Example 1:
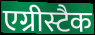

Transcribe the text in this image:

एग्रीस्टैक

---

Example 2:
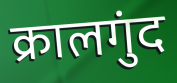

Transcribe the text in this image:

क्रालगुंद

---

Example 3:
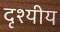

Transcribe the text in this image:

दृश्यीय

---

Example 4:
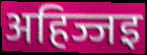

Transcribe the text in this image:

अहिज्जइ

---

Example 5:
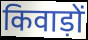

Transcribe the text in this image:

किवाड़ों